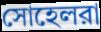
সোহেলরা